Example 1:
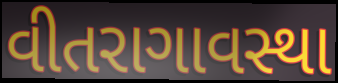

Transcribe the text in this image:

વીતરાગાવસ્થા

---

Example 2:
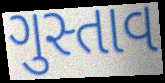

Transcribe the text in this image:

ગુસ્તાવ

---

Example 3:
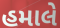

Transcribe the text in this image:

હમાલે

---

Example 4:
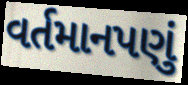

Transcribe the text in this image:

વર્તમાનપણું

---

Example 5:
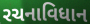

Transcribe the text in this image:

રચનાવિધાન